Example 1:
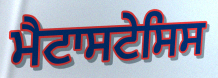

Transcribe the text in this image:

ਮੈਟਾਸਟੇਸਿਸ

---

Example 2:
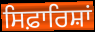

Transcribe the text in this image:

ਸਿਫ਼ਾਰਿਸ਼ਾਂ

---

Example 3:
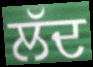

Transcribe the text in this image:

ਲੱਦ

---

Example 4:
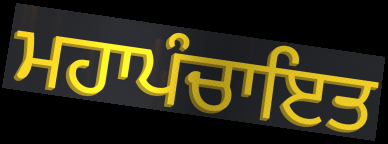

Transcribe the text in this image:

ਮਹਾਪੰਚਾਇਤ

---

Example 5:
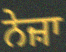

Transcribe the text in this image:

ਨੇਜ਼ਾ